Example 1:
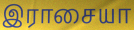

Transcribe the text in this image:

இராசையா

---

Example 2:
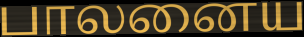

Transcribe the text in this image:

பாலனைய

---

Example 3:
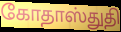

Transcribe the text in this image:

கோதாஸ்துதி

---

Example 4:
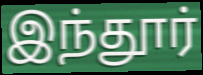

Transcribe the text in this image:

இந்தூர்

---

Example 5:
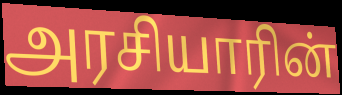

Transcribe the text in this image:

அரசியாரின்